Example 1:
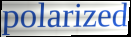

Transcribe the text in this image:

polarized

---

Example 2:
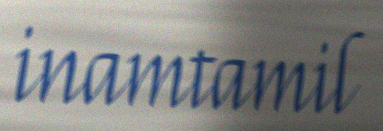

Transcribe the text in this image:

inamtamil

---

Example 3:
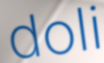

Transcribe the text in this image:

doli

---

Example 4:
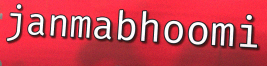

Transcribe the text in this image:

janmabhoomi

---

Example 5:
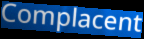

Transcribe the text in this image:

Complacent